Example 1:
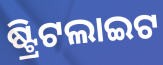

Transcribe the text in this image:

ଷ୍ଟ୍ରିଟଲାଇଟ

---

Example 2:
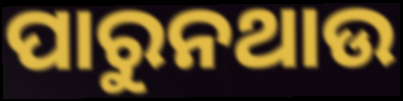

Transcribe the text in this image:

ପାରୁନଥାଉ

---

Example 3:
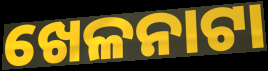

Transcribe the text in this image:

ଖେଳନାଟା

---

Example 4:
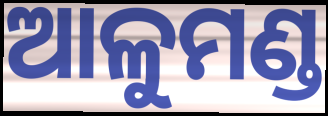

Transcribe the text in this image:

ଆଳୁମଣ୍ଡ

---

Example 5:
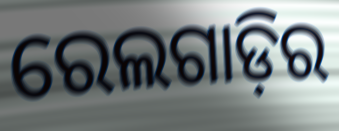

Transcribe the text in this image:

ରେଲଗାଡ଼ିର